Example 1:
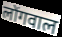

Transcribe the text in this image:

लोंगवाल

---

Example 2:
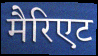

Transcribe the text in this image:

मैरिएट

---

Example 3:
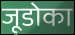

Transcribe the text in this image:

जूडोका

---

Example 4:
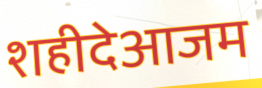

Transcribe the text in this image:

शहीदेआजम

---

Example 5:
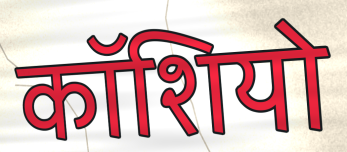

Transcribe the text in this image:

कॉशियो